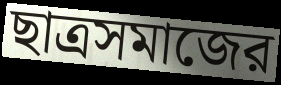
ছাত্রসমাজের